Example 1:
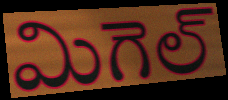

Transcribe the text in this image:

మిగెల్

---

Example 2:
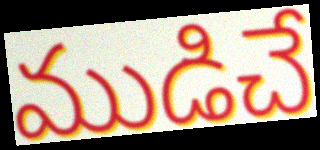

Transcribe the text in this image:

ముడిచే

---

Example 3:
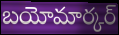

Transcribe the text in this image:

బయోమార్కర్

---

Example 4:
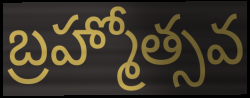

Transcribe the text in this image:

బ్రహ్మోత్సవ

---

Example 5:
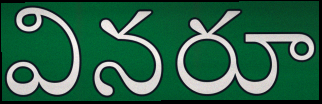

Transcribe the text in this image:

వినరూ